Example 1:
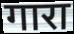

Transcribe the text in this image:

गारा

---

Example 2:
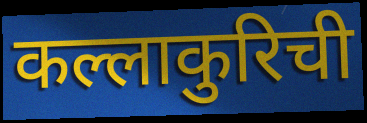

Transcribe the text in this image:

कल्लाकुरिची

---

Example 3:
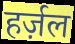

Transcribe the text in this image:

हर्ज़ल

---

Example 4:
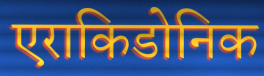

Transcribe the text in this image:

एराकिडोनिक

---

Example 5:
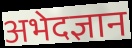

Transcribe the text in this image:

अभेदज्ञान